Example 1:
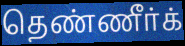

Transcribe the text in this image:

தெண்ணீர்க்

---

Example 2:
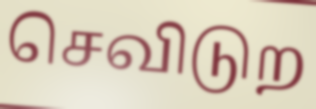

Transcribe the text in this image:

செவிடுற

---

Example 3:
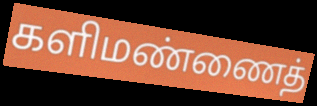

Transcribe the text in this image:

களிமண்ணைத்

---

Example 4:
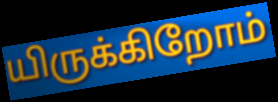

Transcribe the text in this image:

யிருக்கிறோம்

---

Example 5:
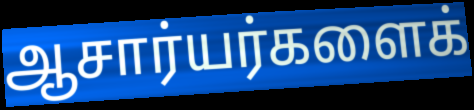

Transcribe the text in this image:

ஆசார்யர்களைக்